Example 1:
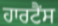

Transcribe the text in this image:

ਹਾਰਟੈਂਸ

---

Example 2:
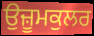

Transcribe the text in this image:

ਉਜ਼ੂਮਕੁਲਰ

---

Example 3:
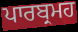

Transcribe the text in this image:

ਪਾਰਬ੍ਰਮਹ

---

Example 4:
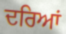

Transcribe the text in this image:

ਦਰਿਆਂ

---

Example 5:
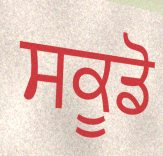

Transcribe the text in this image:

ਸਕੂਡੋ